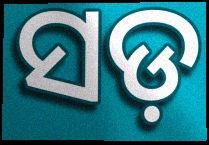
ସଡ଼